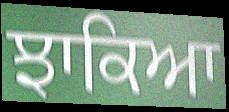
ਝਾਕਿਆ